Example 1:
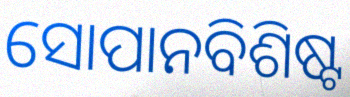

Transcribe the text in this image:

ସୋପାନବିଶିଷ୍ଟ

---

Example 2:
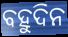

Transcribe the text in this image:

ବହୁଦିନ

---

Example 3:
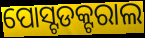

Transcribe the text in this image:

ପୋସ୍ଟଡକ୍ଟରାଲ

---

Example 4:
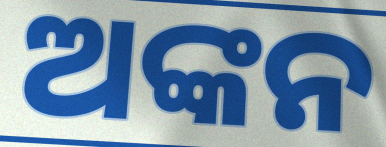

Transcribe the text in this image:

ଅଙ୍କନ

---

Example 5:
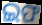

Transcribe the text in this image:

ଇଫ